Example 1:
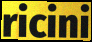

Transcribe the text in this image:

ricini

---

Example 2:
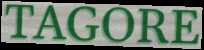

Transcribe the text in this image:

TAGORE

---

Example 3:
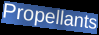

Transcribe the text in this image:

Propellants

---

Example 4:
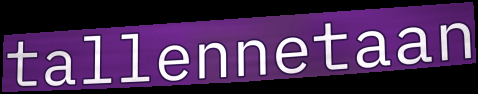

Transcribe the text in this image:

tallennetaan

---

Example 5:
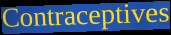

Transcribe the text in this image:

Contraceptives